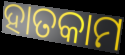
ହାତକାମ